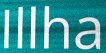
Illha